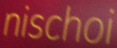
nischoi